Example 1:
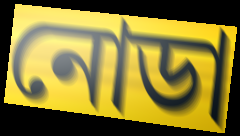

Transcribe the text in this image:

নোডা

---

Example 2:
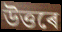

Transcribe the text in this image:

উত্তৰে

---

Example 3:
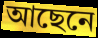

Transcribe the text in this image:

আছেনে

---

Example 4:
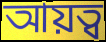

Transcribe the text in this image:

আয়ত্ব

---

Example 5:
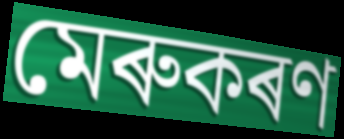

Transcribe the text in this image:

মেৰুকৰণ